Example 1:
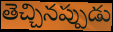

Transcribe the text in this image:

తెచ్చినప్పుడు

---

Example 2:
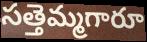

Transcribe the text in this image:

సత్తెమ్మగారూ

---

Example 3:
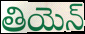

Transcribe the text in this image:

తియెన్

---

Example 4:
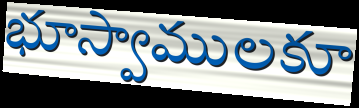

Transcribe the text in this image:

భూస్వాములకూ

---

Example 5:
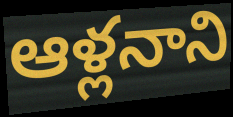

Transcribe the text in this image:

ఆళ్లనాని